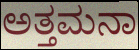
ಅತ್ತಮನಾ